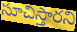
సూచిస్తారని